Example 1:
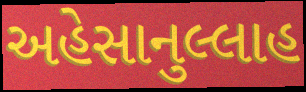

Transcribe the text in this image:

અહેસાનુલ્લાહ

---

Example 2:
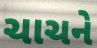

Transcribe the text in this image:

ચાચને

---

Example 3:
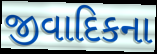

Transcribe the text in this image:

જીવાદિકના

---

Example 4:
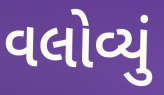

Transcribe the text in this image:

વલોવ્યું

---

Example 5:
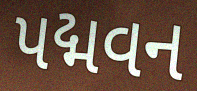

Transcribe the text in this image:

પદ્મવન